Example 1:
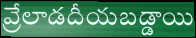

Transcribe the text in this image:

వ్రేలాడదీయబడ్డాయి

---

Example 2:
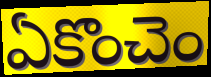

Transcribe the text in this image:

ఏకొంచెం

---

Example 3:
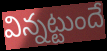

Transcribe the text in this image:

విన్నట్టుందే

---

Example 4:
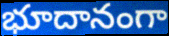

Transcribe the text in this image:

భూదానంగా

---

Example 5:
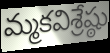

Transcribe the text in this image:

మ్మకవిశ్రేష్ఠు